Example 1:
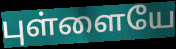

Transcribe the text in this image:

புள்ளையே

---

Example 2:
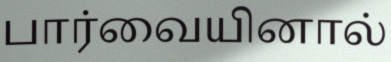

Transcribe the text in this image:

பார்வையினால்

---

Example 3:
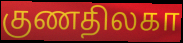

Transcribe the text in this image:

குணதிலகா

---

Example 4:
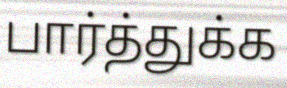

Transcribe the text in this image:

பார்த்துக்க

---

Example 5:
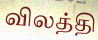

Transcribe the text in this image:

விலத்தி